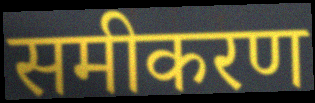
समीकरण